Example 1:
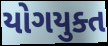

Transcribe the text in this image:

યોગયુક્ત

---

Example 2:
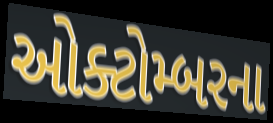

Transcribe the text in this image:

ઓક્ટોમ્બરના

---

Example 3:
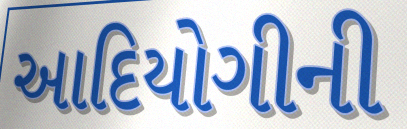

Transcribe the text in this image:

આદિયોગીની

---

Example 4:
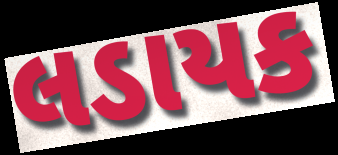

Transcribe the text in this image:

લડાયક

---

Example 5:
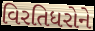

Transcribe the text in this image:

વિરતિધરોને